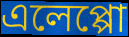
এলেপ্পো